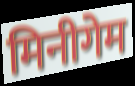
मिनीगेम